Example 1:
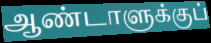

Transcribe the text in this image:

ஆண்டாளுக்குப்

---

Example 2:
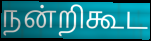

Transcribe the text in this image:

நன்றிகூட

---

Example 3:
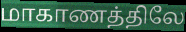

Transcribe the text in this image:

மாகாணத்திலே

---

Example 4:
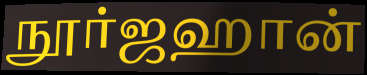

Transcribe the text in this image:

நூர்ஜஹான்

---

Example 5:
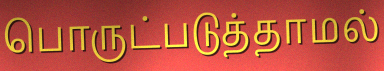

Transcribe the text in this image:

பொருட்படுத்தாமல்